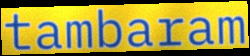
tambaram